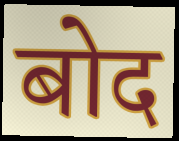
बोद